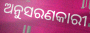
ଅନୁସରଣକାରୀ